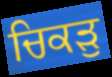
ਚਿਕੜੁ